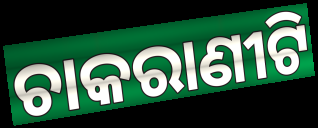
ଚାକରାଣୀଟି